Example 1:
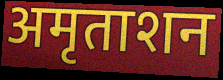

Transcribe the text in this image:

अमृताशन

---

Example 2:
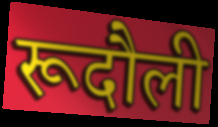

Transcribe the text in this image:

रूदौली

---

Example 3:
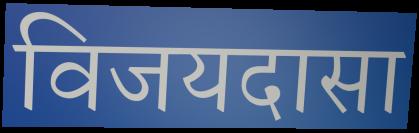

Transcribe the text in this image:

विजयदासा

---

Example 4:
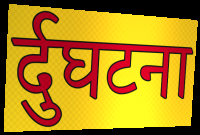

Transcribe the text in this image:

र्दुघटना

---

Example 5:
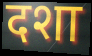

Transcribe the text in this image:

दशा